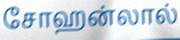
சோஹன்லால்